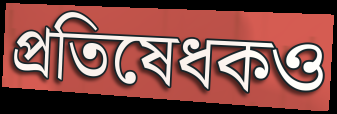
প্রতিষেধকও